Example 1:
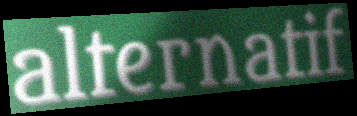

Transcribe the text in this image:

alternatif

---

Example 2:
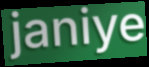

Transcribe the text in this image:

janiye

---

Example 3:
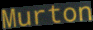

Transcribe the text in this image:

Murton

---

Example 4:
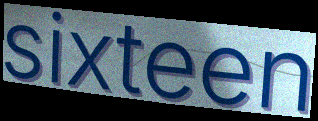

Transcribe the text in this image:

sixteen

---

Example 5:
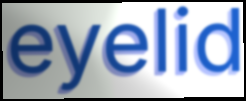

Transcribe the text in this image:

eyelid